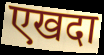
एखदा